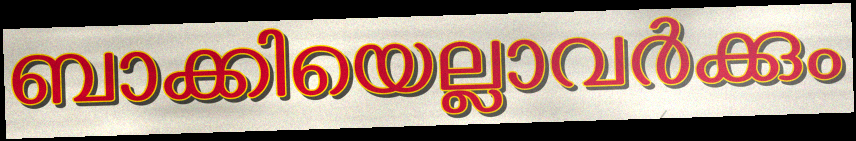
ബാക്കിയെല്ലാവർക്കും